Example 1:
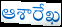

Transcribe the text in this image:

ఆశారేఖ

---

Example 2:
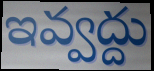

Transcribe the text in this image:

ఇవ్వద్దు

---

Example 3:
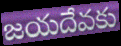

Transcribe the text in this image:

జయదేవకు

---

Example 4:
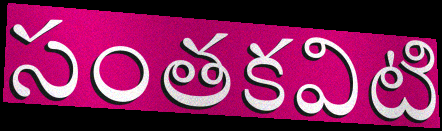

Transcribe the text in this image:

సంతకవిటి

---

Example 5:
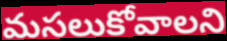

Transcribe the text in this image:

మసలుకోవాలని